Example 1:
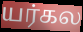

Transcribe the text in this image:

யர்கல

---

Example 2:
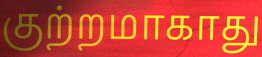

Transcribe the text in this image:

குற்றமாகாது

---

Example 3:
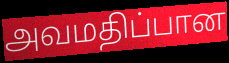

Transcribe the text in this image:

அவமதிப்பான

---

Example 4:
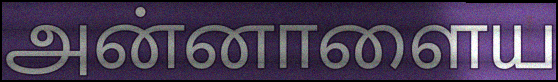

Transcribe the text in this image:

அன்னாளைய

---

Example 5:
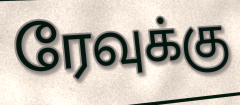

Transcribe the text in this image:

ரேவுக்கு